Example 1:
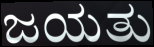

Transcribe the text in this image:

ಜಯತು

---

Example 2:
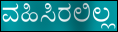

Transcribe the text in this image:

ವಹಿಸಿರಲಿಲ್ಲ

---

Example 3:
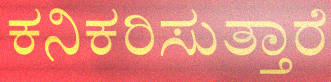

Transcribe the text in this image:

ಕನಿಕರಿಸುತ್ತಾರೆ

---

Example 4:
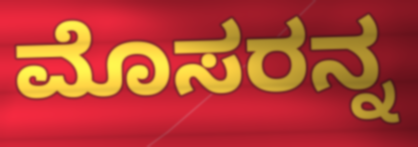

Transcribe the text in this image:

ಮೊಸರನ್ನ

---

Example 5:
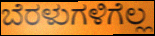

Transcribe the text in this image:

ಬೆರಳುಗಳಿಗೆಲ್ಲ